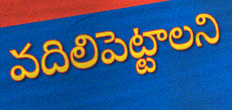
వదిలిపెట్టాలని